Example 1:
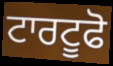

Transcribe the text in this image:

ਟਾਰਟੂਫੋ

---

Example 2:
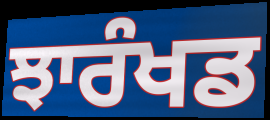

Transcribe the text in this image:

ਝਾਰੰਖਡ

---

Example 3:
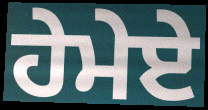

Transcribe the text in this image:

ਹੇਮੇਏ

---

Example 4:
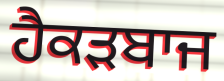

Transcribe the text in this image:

ਹੈਕੜਬਾਜ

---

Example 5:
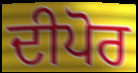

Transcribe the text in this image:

ਦੀਪੋਰ